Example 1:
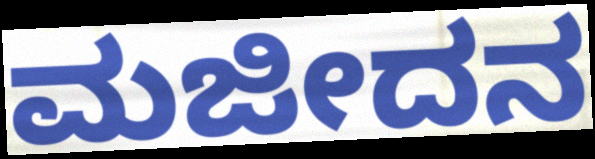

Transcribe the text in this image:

ಮಜೀದನ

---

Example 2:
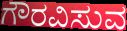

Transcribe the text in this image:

ಗೌರವಿಸುವ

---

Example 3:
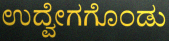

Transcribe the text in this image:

ಉದ್ವೇಗಗೊಂಡು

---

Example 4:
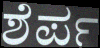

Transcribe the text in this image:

ಶೆರ್ಪ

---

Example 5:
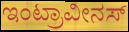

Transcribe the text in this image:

ಇಂಟ್ರಾವೀನಸ್